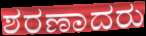
ಶರಣಾದರು